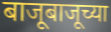
बाजूबाजूच्या